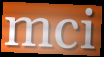
mci